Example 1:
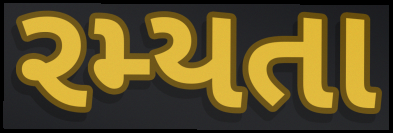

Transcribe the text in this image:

રમ્યતા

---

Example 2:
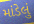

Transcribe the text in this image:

માંડેલું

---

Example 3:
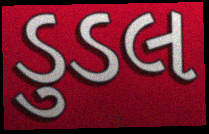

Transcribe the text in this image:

ડુડલ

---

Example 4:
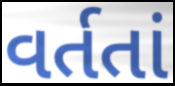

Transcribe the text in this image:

વર્તતાં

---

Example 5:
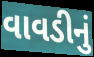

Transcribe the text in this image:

વાવડીનું